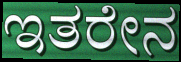
ಇತರೇನ